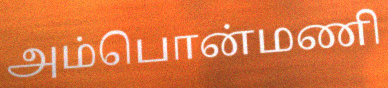
அம்பொன்மணி